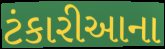
ટંકારીઆના